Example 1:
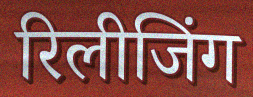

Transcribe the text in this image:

रिलीजिंग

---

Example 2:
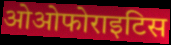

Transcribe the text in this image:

ओओफोराइटिस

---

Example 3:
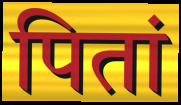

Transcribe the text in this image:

पितां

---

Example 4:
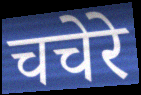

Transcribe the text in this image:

चचेरे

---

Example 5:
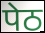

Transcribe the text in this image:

पेठ